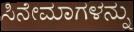
ಸಿನೇಮಾಗಳನ್ನು